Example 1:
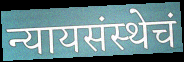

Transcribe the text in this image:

न्यायसंस्थेचं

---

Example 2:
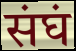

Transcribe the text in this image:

संघं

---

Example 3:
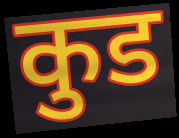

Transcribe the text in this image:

कुड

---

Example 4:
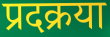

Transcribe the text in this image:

प्रदक्रया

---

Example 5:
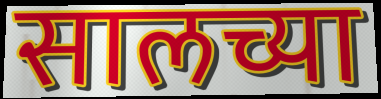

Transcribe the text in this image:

सालच्या